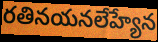
రతినయనలేహ్యేన